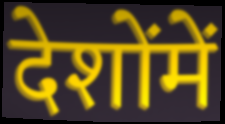
देशोंमें